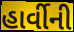
હાર્વીની